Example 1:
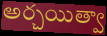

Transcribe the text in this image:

అర్చయిత్వా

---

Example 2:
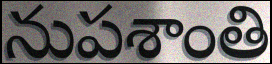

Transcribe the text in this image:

నుపశాంతి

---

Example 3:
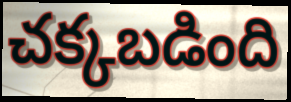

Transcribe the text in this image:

చక్కబడింది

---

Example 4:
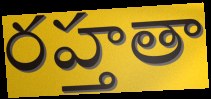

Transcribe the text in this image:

రహ్తతా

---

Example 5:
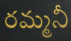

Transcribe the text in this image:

రమ్మనీ